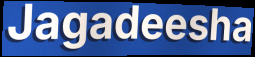
Jagadeesha